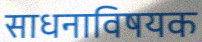
साधनाविषयक